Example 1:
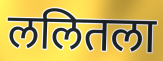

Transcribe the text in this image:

ललितला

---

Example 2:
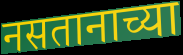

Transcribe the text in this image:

नसतानाच्या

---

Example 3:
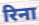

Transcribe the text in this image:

रिना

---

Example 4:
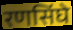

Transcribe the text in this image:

रणसिंघे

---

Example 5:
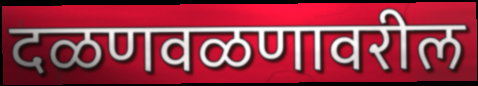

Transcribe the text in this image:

दळणवळणावरील